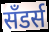
सॅंडर्स